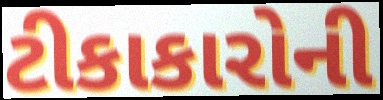
ટીકાકારોની